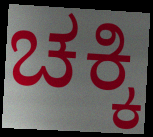
ಚಕ್ಕಿ